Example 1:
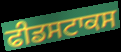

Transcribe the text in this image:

ਫੀਡਸਟਾਕਸ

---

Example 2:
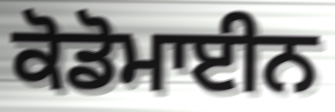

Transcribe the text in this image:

ਕੋਡੋਮਾਈਨ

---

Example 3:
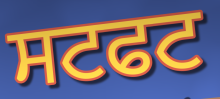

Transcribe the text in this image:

ਸਟਫਟ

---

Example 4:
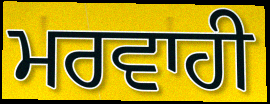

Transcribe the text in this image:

ਮਰਵਾਹੀ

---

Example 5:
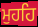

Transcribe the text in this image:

ਮੁਹਹਿ